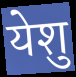
येशु